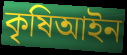
কৃষিআইন